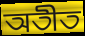
অতীত